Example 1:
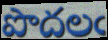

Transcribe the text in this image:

పొదలఁ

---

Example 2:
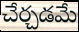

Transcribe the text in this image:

చేర్చడమే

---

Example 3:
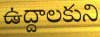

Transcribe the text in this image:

ఉద్దాలకుని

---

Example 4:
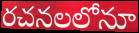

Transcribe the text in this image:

రచనలలోనూ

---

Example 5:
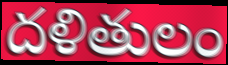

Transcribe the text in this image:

దళితులం